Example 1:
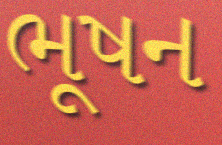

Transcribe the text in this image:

ભૂષન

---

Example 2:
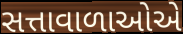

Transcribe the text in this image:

સત્તાવાળાઓએ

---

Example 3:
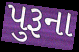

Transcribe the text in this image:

પુરૂના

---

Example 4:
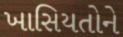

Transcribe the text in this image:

ખાસિયતોને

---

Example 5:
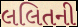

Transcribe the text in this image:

લલિતની